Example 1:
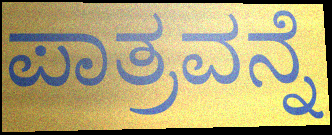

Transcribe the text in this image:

ಪಾತ್ರವನ್ನೆ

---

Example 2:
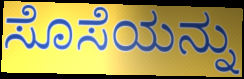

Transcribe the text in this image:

ಸೊಸೆಯನ್ನು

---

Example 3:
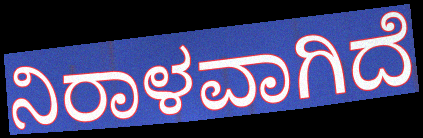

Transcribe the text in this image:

ನಿರಾಳವಾಗಿದೆ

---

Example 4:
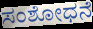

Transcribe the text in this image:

ಸಂಶೋಧನೆ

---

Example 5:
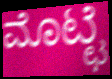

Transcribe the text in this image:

ಮೊಟ್ಟೆ